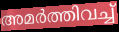
അമർത്തിവച്ച്